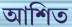
আশিত